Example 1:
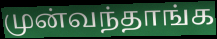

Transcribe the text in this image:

முன்வந்தாங்க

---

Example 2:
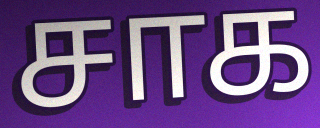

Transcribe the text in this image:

சாக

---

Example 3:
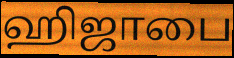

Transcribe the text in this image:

ஹிஜாபை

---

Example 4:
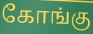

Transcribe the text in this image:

கோங்கு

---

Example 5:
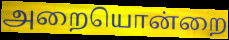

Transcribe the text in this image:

அறையொன்றை